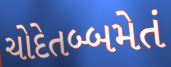
ચોદેતબ્બમેતં